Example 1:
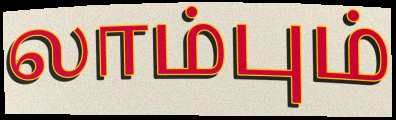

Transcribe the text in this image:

லாம்பும்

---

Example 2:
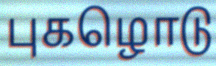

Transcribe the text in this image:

புகழொடு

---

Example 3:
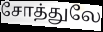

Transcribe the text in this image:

சோத்துலே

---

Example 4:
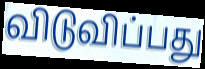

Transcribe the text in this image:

விடுவிப்பது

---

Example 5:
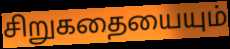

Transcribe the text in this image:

சிறுகதையையும்